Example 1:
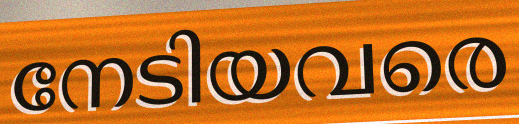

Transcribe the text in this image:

നേടിയവരെ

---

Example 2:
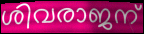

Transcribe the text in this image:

ശിവരാജന്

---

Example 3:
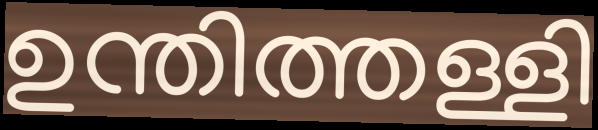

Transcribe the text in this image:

ഉന്തിത്തള്ളി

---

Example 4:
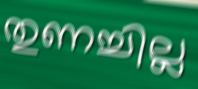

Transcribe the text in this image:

തുണച്ചില്ല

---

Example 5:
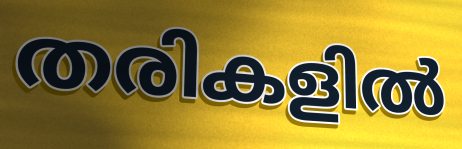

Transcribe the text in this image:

തരികളിൽ